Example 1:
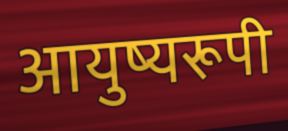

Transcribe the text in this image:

आयुष्यरूपी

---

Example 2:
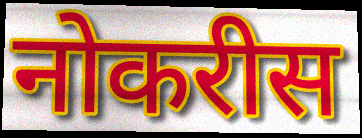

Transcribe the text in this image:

नोकरीस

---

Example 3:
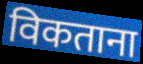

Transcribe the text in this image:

विकताना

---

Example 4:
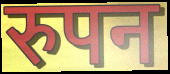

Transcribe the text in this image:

रुपन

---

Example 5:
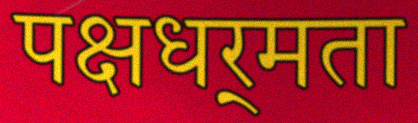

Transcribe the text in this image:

पक्षधर्मता